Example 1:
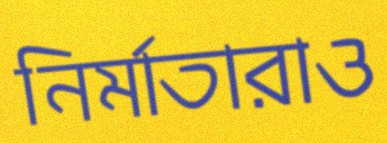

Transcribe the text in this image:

নির্মাতারাও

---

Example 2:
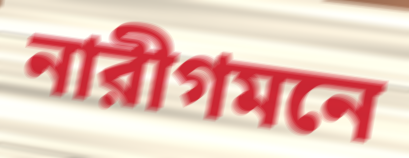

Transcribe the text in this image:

নারীগমনে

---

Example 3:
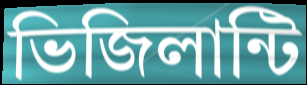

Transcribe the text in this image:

ভিজিলান্টি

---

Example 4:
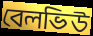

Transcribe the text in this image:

বেলভিউ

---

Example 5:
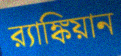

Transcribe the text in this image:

র‍্যাঙ্কিয়ান